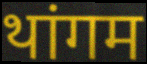
थांगम